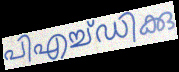
പിഎച്ച്ഡിക്കു